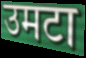
उमटा